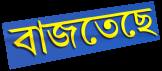
বাজতেছে